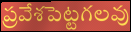
ప్రవేశపెట్టగలవు